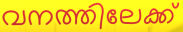
വനത്തിലേക്ക്